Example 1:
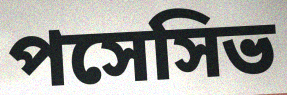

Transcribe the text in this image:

পসেসিভ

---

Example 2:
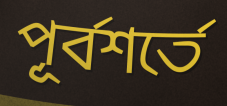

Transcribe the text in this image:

পূর্বশর্তে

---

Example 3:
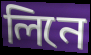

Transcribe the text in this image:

লিনে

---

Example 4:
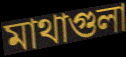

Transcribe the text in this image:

মাথাগুলা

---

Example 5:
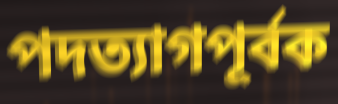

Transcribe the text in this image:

পদত্যাগপূর্বক